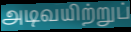
அடிவயிற்றுப்